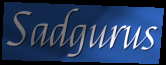
Sadgurus